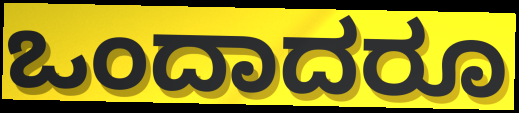
ಒಂದಾದರೂ